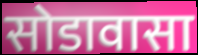
सोडावासा